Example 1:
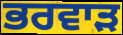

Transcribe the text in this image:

ਭਰਵਾੜ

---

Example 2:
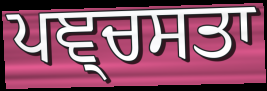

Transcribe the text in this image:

ਪਞ੍ਚਸਤਾ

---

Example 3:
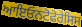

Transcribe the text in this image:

ਆਇਓਨਟੋਫੋਰੇਸਿਸ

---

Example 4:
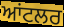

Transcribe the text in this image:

ਆਂਟਲਰ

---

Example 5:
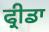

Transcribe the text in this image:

ਫ੍ਰੀਡਾ